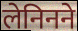
लेनिनने